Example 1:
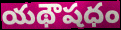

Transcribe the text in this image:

యథౌషధం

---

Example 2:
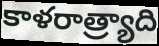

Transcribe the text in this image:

కాళరాత్ర్యాది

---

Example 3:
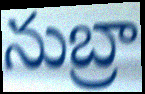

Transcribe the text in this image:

నుబ్రా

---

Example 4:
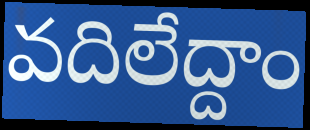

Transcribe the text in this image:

వదిలేద్దాం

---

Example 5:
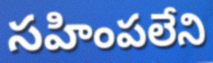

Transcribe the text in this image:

సహింపలేని